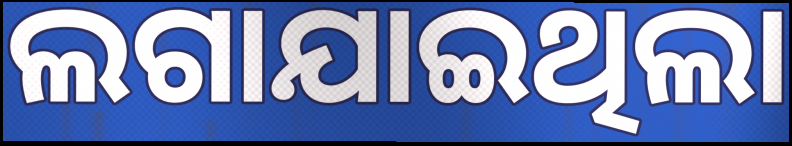
ଲଗାଯାଇଥିଲା